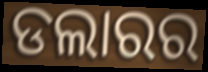
ଡଲାରର